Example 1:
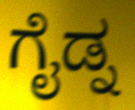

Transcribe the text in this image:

ಗೈಡ್ನ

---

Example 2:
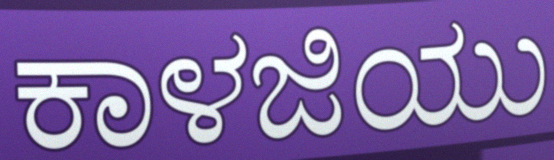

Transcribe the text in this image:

ಕಾಳಜಿಯು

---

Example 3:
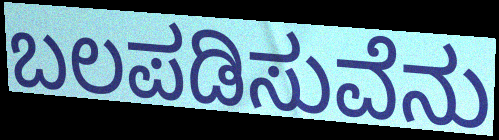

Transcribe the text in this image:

ಬಲಪಡಿಸುವೆನು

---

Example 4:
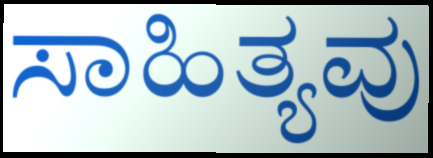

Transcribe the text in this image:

ಸಾಹಿತ್ಯವು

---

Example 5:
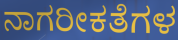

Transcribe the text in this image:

ನಾಗರೀಕತೆಗಳ